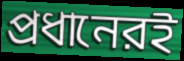
প্রধানেরই